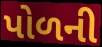
પોળની